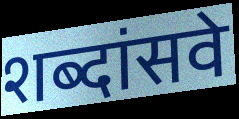
शब्दांसवे